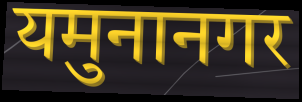
यमुनानगर